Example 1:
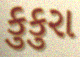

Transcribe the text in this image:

કુકુરા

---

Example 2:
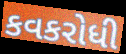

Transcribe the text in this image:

કવકરોધી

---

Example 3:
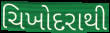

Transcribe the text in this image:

ચિખોદરાથી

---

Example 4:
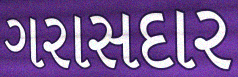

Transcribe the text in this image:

ગરાસદાર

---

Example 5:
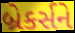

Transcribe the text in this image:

બ્રેકર્સને